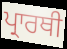
ਪ੍ਰਾਰਥੀ